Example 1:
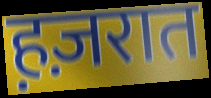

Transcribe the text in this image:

ह़ज़रात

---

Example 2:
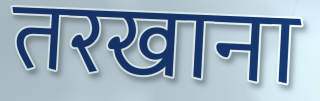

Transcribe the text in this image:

तरखाना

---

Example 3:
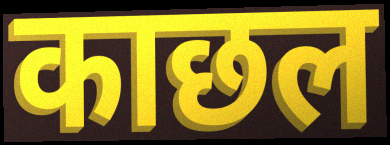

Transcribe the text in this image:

काछल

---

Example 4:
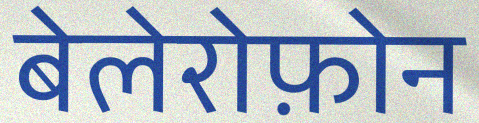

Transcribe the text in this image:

बेलेरोफ़ोन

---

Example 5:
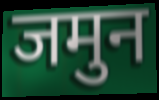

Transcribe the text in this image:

जमुन